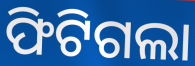
ଫିଟିଗଲା